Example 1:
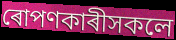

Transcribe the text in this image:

ৰোপণকাৰীসকলে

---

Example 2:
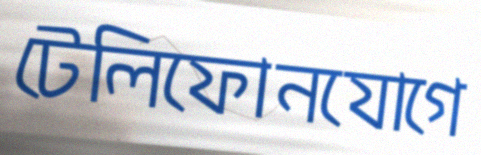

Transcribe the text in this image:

টেলিফোনযোগে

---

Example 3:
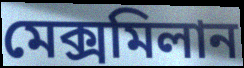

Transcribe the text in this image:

মেক্সমিলান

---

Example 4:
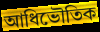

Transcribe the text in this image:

আধিভৌতিক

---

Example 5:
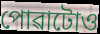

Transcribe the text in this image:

পোৱাটোও